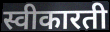
स्वीकारती